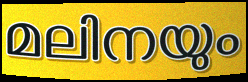
മലിനയും